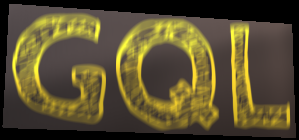
GQL